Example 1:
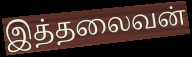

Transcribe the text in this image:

இத்தலைவன்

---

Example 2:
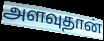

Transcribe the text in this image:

அளவுதான்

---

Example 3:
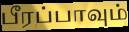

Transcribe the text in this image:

பீரப்பாவும்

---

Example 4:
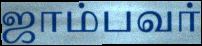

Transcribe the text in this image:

ஜாம்பவர்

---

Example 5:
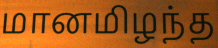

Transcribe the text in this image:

மானமிழந்த